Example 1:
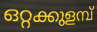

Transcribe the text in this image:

ഒറ്റക്കുളമ്പ്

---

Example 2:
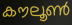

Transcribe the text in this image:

കൗലൂൺ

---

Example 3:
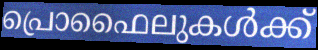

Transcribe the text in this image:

പ്രൊഫൈലുകൾക്ക്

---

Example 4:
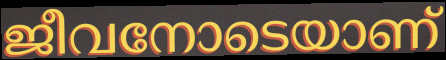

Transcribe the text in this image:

ജീവനോടെയാണ്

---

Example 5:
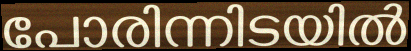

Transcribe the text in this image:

പോരിന്നിടയിൽ